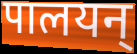
पालयन्